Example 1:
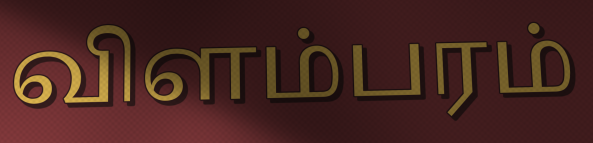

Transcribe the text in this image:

விளம்பரம்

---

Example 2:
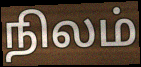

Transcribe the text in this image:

நிலம்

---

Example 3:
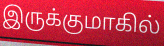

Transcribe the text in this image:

இருக்குமாகில்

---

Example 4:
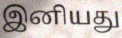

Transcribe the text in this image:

இனியது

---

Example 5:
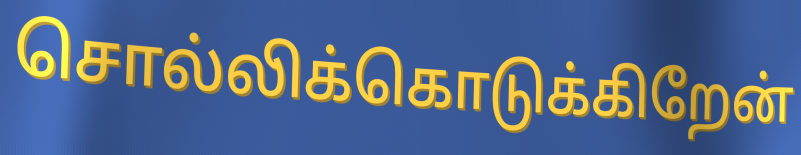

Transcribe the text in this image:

சொல்லிக்கொடுக்கிறேன்